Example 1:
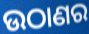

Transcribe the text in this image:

ଉଠାଣର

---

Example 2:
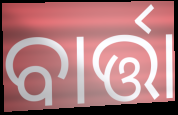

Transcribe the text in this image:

ବାର୍ତ୍ତା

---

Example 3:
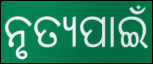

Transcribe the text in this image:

ନୃତ୍ୟପାଇଁ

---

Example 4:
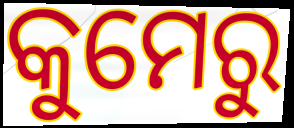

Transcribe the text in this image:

କୁମେରୁ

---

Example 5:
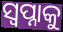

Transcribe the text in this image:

ସ୍ୱପ୍ନାକୁ